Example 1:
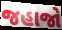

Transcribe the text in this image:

જહાજો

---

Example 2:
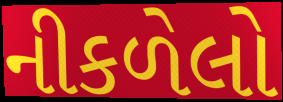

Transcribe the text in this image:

નીકળેલો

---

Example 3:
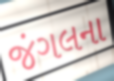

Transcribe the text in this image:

જંગલના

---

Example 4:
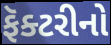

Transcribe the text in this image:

ફૅક્ટરીનો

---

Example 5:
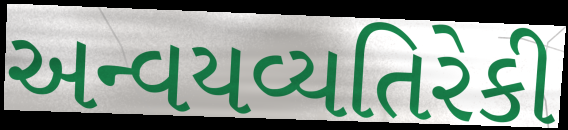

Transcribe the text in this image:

અન્વયવ્યતિરેકી